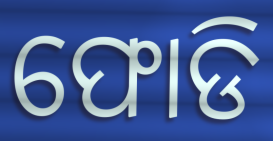
ଫୋଡି